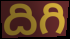
దిగి